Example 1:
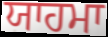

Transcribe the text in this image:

ਯਾਹਮਾ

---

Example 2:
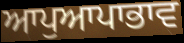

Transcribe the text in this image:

ਆਪੁਆਪਾਭਾਵ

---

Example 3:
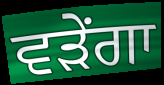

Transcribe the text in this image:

ਵੜੇਂਗਾ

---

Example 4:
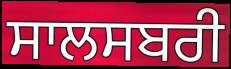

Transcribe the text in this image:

ਸਾਲਸਬਰੀ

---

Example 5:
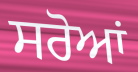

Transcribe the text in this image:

ਸਰੋਆਂ